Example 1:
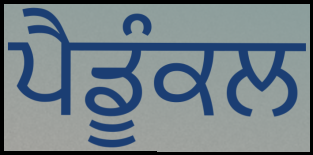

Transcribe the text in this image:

ਪੈਡੂੰਕਲ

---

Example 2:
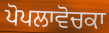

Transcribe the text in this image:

ਪੋਪਲਾਵੋਚਕਾ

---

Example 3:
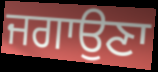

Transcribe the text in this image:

ਜਗਾਉਣਾ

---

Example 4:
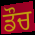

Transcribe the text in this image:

ਡੌਚ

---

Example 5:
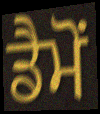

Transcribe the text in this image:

ਡੈਮੋਂ